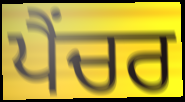
ਪੈਂਚਰ